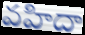
వహిదా